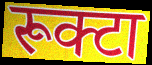
रूक्टा